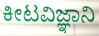
ಕೀಟವಿಜ್ಞಾನಿ